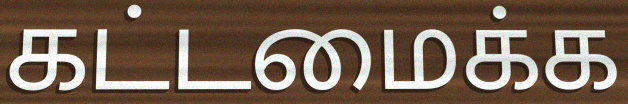
கட்டமைக்க